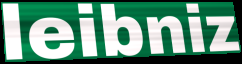
leibniz